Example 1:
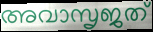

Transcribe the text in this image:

അവാസൃജത്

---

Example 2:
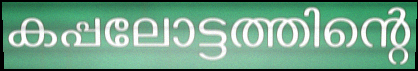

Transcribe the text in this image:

കപ്പലോട്ടത്തിന്റെ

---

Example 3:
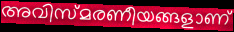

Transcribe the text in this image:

അവിസ്മരണീയങ്ങളാണ്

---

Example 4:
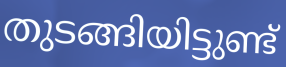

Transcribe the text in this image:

തുടങ്ങിയിട്ടുണ്ട്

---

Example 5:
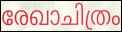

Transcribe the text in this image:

രേഖാചിത്രം